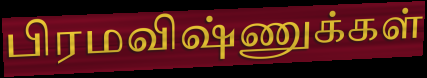
பிரமவிஷ்ணுக்கள்